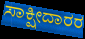
ಸಾಕ್ಷೀದಾರರ